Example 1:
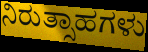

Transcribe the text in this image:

ನಿರುತ್ಸಾಹಗಳು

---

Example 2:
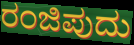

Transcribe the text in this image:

ರಂಜಿಪುದು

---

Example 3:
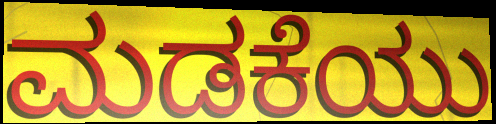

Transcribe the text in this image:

ಮಡಕೆಯು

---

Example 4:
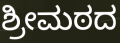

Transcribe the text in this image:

ಶ್ರೀಮಠದ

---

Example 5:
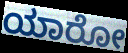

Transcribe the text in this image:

ಯಾರೋ